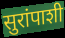
सुरांपाशी